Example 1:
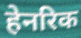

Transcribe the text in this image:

हेनरिक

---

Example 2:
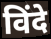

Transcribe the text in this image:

विंदे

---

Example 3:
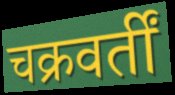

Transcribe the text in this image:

चक्रवर्तीं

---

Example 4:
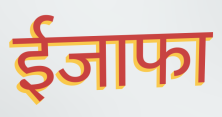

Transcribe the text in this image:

ईजाफा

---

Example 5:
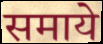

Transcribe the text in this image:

समाये